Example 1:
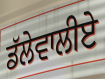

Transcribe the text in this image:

ਡੱਲੇਵਾਲੀਏ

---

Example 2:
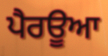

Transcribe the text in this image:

ਪੈਰਊਆ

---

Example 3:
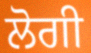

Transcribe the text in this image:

ਲੋਗੀ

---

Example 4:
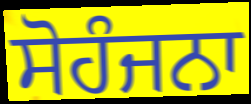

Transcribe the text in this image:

ਸੋਹੰਜਨਾ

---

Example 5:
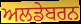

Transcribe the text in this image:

ਅਲਡੇਬਰਨ